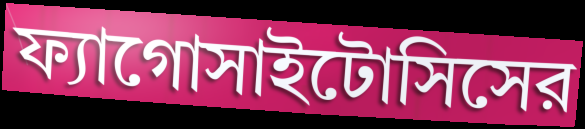
ফ্যাগোসাইটোসিসের